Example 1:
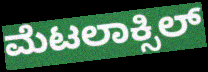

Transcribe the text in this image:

ಮೆಟಲಾಕ್ಸಿಲ್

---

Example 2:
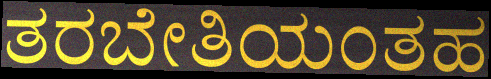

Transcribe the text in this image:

ತರಬೇತಿಯಂತಹ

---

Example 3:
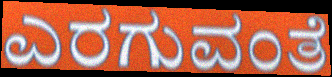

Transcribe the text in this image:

ಎರಗುವಂತೆ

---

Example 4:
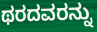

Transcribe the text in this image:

ಥರದವರನ್ನು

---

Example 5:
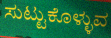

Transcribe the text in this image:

ಸುಟ್ಟುಕೊಳ್ಳುವ